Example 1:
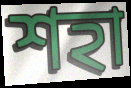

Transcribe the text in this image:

শহা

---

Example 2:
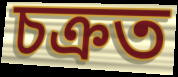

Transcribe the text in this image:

চক্ৰত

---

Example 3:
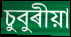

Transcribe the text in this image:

চুবুৰীয়া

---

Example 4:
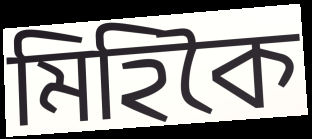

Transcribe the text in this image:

মিহিকৈ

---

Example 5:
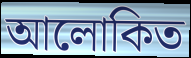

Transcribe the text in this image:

আলোকিত